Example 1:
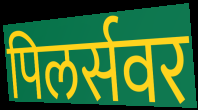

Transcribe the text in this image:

पिलर्सवर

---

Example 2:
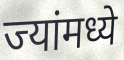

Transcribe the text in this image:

ज्यांमध्ये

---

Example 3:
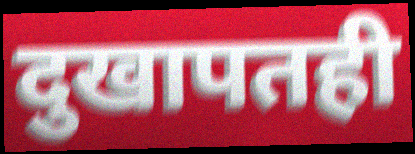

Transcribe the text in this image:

दुखापतही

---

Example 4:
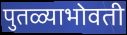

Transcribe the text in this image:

पुतळ्याभोवती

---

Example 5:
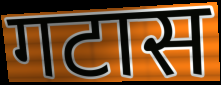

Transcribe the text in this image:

गटास